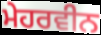
ਮੇਹਰਵੀਨ